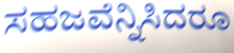
ಸಹಜವೆನ್ನಿಸಿದರೂ